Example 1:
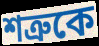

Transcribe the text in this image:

শত্রুকে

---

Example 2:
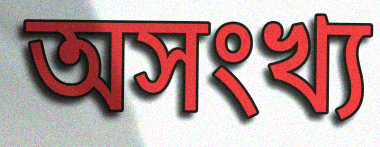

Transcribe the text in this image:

অসংখ্য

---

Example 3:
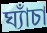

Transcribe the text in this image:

ঘ্যাঁচা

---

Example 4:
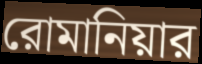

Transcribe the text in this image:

রোমানিয়ার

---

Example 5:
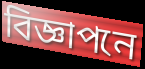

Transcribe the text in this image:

বিজ্ঞাপনে